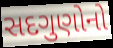
સદગુણોનો